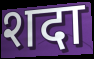
शदा